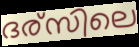
ദര്സിലെ